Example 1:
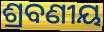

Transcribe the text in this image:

ଶ୍ରବଣୀୟ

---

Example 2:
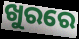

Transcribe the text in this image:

ଖୁରରେ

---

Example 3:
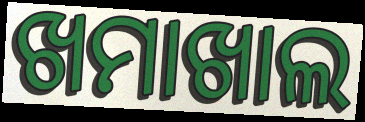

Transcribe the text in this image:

ଖମାଖାଲ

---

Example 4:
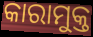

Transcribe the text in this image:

କାରାମୁକ୍ତ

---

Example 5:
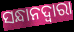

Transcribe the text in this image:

ସନ୍ଧାନଦ୍ୱାରା